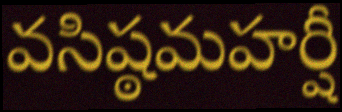
వసిష్ఠమహర్షీ